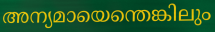
അന്യമായെന്തെങ്കിലും